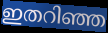
ഇതറിഞ്ഞ